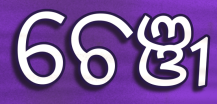
ଚେଞ୍ଜ